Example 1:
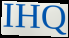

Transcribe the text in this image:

IHQ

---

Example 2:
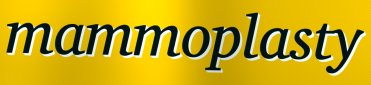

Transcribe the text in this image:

mammoplasty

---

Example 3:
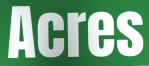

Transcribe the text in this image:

Acres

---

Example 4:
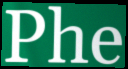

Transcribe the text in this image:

Phe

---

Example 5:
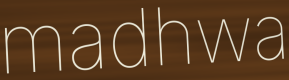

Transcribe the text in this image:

madhwa